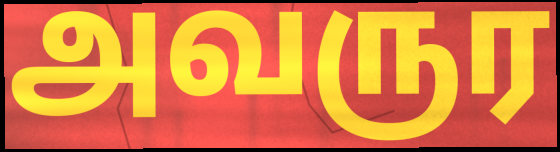
அவருர